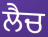
ਲੈਚ